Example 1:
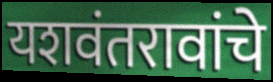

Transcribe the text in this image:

यशवंतरावांचे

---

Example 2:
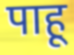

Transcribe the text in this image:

पाहू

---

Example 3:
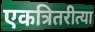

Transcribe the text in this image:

एकत्रितरीत्या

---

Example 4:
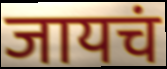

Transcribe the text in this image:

जायचं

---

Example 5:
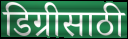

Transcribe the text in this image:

डिग्रीसाठी